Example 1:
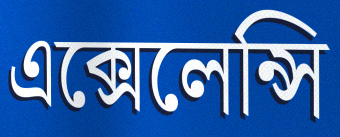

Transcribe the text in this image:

এক্সেলেন্সি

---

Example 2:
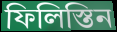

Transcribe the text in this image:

ফিলিস্তিন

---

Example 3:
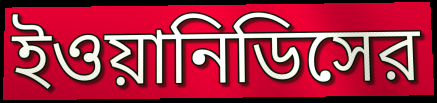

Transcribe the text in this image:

ইওয়ানিডিসের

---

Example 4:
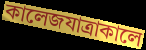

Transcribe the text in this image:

কালেজযাত্রাকালে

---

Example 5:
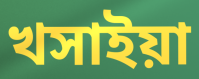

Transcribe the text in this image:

খসাইয়া